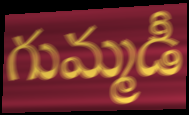
గుమ్మడీ